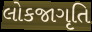
લોકજાગૃતિ